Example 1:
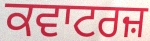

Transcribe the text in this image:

ਕਵਾਟਰਜ਼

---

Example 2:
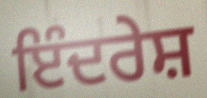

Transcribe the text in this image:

ਇੰਦਰੇਸ਼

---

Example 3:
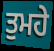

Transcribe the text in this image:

ਤੁਮਹੇ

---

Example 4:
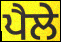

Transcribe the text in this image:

ਪੈਲੇ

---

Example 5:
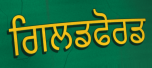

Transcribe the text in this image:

ਗਿਲਡਫੋਰਡ